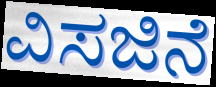
ವಿಸಜಿನೆ